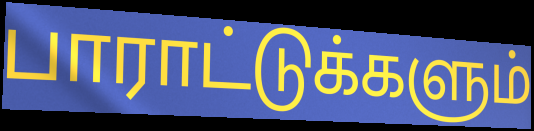
பாராட்டுக்களும்